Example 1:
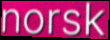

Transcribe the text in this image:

norsk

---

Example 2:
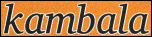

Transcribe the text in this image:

kambala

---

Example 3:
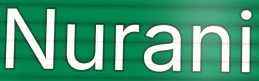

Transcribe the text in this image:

Nurani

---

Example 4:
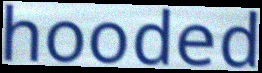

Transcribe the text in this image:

hooded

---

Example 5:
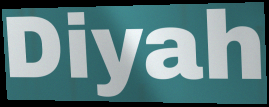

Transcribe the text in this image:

Diyah